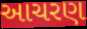
આચરણ